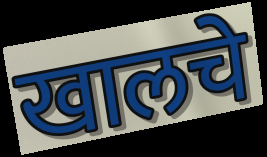
खालचे